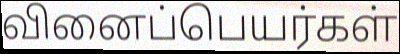
வினைப்பெயர்கள்